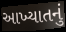
આખ્યાતનું